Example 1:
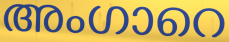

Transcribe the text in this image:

അംഗാറെ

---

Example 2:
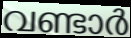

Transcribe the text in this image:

വണ്ടാർ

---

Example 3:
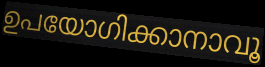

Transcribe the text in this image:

ഉപയോഗിക്കാനാവൂ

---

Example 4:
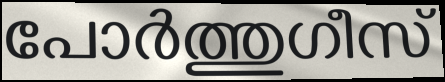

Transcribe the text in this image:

പോർത്തുഗീസ്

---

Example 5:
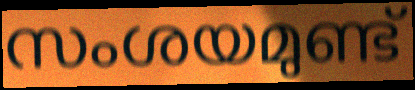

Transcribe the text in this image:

സംശയമുണ്ട്